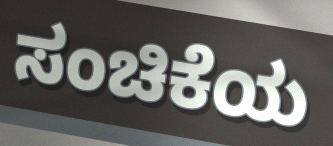
ಸಂಚಿಕೆಯ